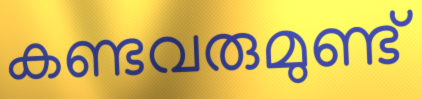
കണ്ടവരുമുണ്ട്